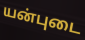
யன்புடை